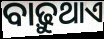
ବାଢ଼ୁଥାଏ